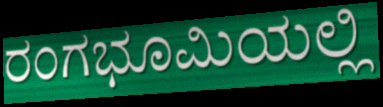
ರಂಗಭೂಮಿಯಲ್ಲಿ